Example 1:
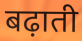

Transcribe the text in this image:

बढ़ाती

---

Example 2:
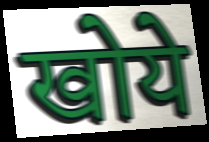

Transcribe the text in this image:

खोये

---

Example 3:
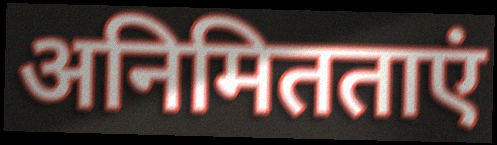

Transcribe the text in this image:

अनिमितताएं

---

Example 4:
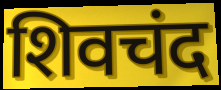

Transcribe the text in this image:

शिवचंद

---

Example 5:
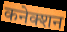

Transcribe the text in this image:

कनेक्‍शन